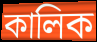
কালিক